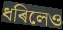
ধৰিলেও